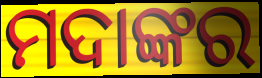
ମଦାଙ୍କର